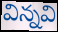
విన్నవి